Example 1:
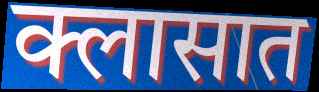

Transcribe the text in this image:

क्लासात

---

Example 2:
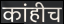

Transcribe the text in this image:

कांहीच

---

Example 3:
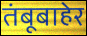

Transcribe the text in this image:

तंबूबाहेर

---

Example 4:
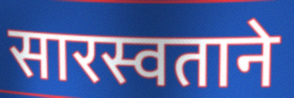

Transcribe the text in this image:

सारस्वताने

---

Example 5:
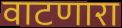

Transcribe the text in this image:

वाटणारा